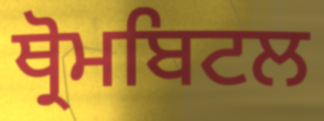
ਥ੍ਰੋਮਬਿਟਲ